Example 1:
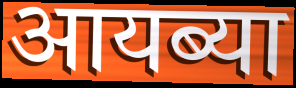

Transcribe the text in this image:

आयब्या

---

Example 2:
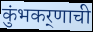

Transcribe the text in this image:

कुंभकर्णाची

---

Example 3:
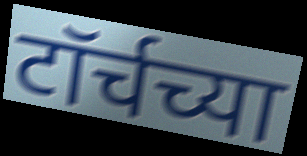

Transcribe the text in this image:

टॉर्चच्या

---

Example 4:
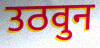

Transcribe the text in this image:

उठवुन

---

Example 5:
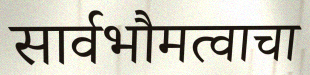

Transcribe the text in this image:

सार्वभौमत्वाचा